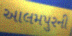
આલમપુરની